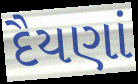
દૈયણાં